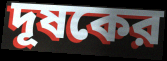
দূষকের